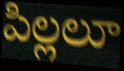
పిల్లలూ